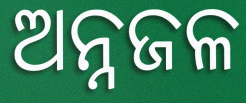
ଅନ୍ନଜଳ